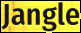
Jangle